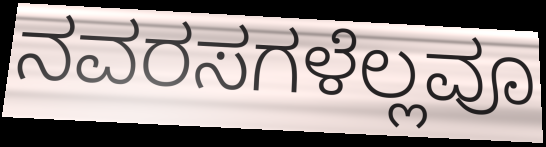
ನವರಸಗಳೆಲ್ಲವೂ